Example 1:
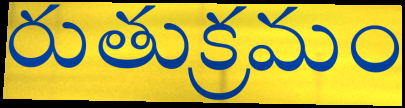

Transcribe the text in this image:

రుతుక్రమం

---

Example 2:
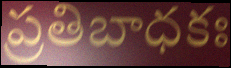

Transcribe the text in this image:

ప్రతిబాధకః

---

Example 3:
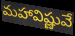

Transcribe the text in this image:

మహావిష్ణువే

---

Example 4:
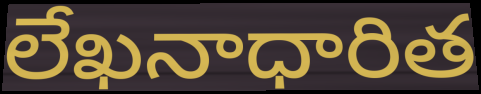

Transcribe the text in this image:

లేఖనాధారిత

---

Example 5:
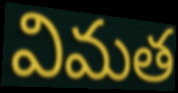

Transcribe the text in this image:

విమత